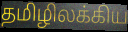
தமிழிலக்கிய